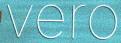
vero